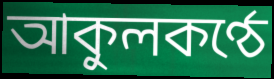
আকুলকণ্ঠে